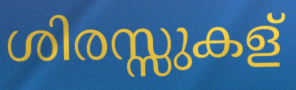
ശിരസ്സുകള്